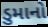
ડુમાનો